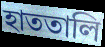
হাততালি